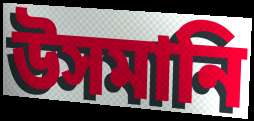
উসমানি